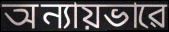
অন্যায়ভাৱে